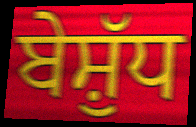
ਬੇਸ਼ੁੱਧ